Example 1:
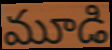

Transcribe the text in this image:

మూడి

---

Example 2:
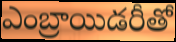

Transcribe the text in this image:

ఎంబ్రాయిడరీతో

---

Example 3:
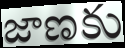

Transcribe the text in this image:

జాణకు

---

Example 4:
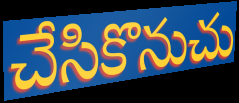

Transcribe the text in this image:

చేసికొనుచు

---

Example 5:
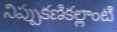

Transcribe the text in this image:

నిప్పుకణికల్లాంటి